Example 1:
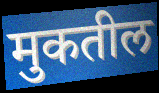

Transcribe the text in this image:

मुकतील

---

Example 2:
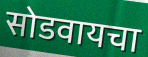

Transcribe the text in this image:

सोडवायचा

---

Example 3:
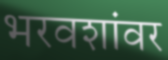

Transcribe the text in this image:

भरवशांवर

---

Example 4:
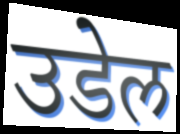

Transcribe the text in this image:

उडेल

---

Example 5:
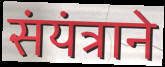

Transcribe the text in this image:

संयंत्राने